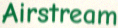
Airstream